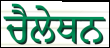
ਚੈਲੇਥਨ